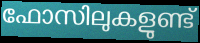
ഫോസിലുകളുണ്ട്